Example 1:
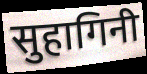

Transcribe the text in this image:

सुहागिनी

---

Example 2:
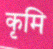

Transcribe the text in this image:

कृमि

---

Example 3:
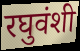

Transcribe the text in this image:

रघुवंशी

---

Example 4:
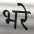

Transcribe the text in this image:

भरे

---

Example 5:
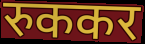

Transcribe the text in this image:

रुककर